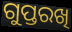
ଗୁପ୍ତରଖି